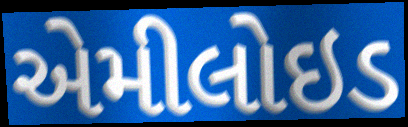
એમીલોઇડ